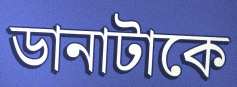
ডানাটাকে